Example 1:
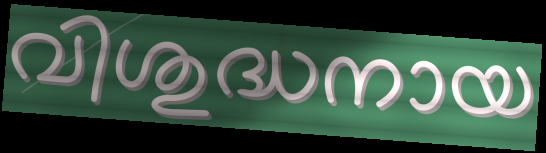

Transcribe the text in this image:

വിശുദ്ധനായ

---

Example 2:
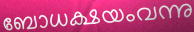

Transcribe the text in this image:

ബോധക്ഷയംവന്നു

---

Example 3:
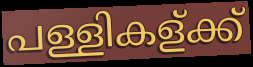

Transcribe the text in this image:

പള്ളികള്ക്ക്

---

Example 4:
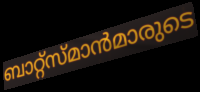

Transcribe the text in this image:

ബാറ്റ്സ്മാൻമാരുടെ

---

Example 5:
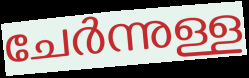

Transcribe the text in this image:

ചേർന്നുള്ള